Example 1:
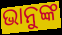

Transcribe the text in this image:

ଭାନୁଙ୍କ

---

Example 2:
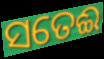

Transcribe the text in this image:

ସତେଈ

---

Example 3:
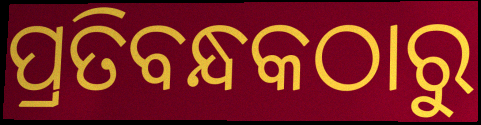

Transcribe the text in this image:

ପ୍ରତିବନ୍ଧକଠାରୁ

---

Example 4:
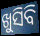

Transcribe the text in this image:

ଖୁସିବି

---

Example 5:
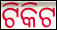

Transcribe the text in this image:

ଟିକିଟ